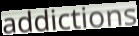
addictions